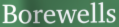
Borewells